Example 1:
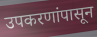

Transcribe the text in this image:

उपकरणांपासून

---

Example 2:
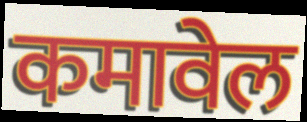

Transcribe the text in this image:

कमावेल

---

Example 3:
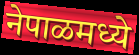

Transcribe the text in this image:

नेपाळमध्ये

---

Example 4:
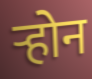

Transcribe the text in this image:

र्‍होन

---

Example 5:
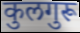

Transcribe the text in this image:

कुलगुरू